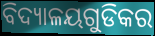
ବିଦ୍ୟାଳୟଗୁଡିକର